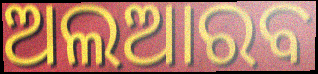
ଅଲଆରବ